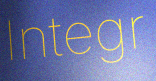
Integr